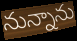
నున్నాను